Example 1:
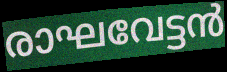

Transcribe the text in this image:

രാഘവേട്ടൻ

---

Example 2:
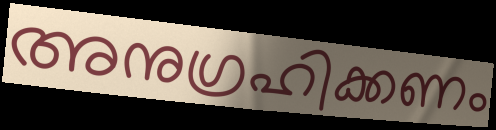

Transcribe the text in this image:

അനുഗ്രഹിക്കണം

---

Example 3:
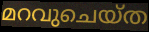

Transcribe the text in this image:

മറവുചെയ്ത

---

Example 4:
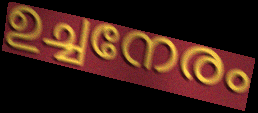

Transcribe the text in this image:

ഉച്ചനേരം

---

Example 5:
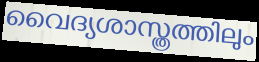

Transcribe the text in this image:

വൈദ്യശാസ്ത്രത്തിലും